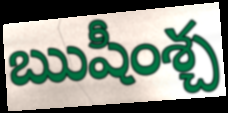
ఋషీంశ్చ